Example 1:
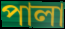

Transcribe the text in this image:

পালা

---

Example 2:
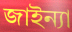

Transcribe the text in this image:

জাইন্যা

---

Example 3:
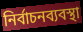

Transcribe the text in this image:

নির্বাচনব্যবস্থা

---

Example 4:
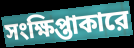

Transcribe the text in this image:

সংক্ষিপ্তাকারে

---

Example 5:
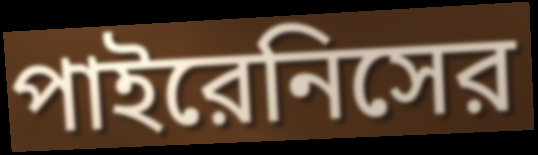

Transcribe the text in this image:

পাইরেনিসের